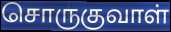
சொருகுவாள்